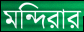
মন্দিরার